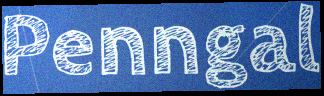
Penngal